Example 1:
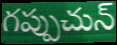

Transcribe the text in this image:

గప్పుచున్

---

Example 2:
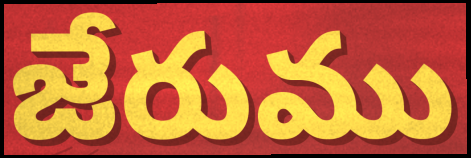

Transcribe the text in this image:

జేరుము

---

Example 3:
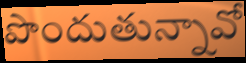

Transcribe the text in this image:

పొందుతున్నావో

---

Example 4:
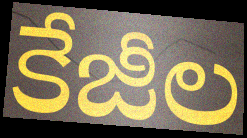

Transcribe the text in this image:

కేజీల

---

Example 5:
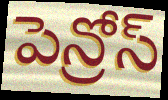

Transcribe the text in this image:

పెన్రోస్